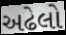
અઢેલો